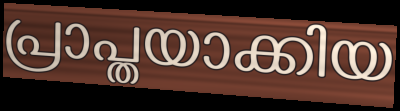
പ്രാപ്തയാക്കിയ